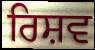
ਰਿਸ਼ਵ